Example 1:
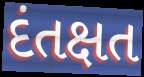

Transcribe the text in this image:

દંતક્ષત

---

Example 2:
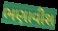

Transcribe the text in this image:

ભણાવીશ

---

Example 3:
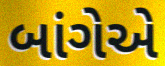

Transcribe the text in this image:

બાંગેએ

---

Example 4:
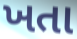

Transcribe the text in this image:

ખતા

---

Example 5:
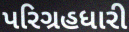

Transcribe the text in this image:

પરિગ્રહધારી